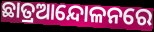
ଛାତ୍ରଆନ୍ଦୋଳନରେ